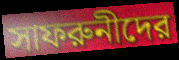
সাফরুনীদের